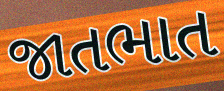
જાતભાત